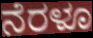
ನೆರಳೂ